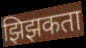
झिझकता